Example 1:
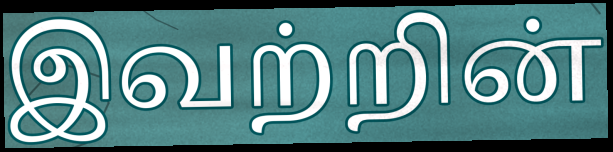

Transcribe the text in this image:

இவற்றின்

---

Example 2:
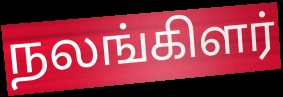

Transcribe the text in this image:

நலங்கிளர்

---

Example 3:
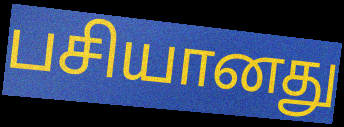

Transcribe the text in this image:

பசியானது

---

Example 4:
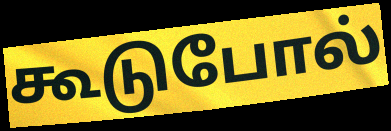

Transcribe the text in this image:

கூடுபோல்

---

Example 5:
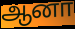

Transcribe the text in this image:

ஆனா